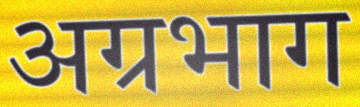
अग्रभाग